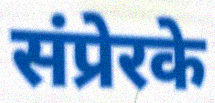
संप्रेरके